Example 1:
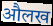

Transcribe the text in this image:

औलख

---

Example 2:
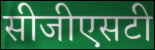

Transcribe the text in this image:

सीजीएसटी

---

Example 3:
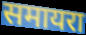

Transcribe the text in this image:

समायरा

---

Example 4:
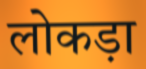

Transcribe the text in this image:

लोकड़ा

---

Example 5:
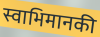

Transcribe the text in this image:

स्वाभिमानकी